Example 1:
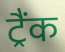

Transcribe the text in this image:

ट्रैंक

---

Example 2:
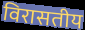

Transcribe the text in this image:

विरासतीय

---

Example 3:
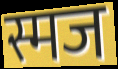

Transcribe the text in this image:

स्मज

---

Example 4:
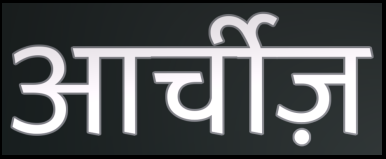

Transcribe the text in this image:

आर्चीज़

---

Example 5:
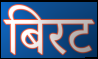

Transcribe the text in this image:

बिरट